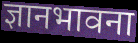
ज्ञानभावना